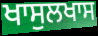
ਖਾਸੁਲਖਾਸ